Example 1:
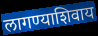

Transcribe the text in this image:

लागण्याशिवाय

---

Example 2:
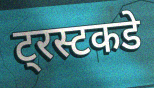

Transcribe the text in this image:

ट्रस्टकडे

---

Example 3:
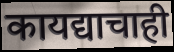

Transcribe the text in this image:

कायद्याचाही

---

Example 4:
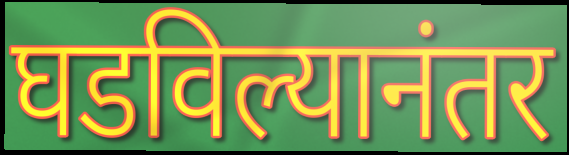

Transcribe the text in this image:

घडविल्यानंतर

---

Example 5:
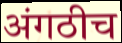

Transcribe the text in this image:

अंगठीच